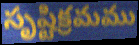
సృష్టిక్రమము